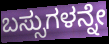
ಬಸ್ಸುಗಳನ್ನೇ